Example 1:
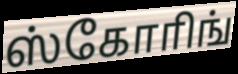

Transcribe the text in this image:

ஸ்கோரிங்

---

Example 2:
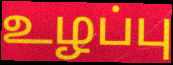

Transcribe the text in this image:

உழப்பு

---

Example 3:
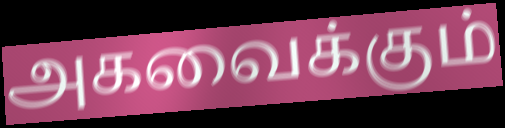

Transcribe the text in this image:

அகவைக்கும்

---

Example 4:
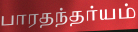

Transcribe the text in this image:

பாரதந்தர்யம்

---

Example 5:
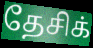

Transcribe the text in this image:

தேசிக்